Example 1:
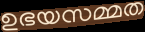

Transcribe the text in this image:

ഉഭയസമ്മത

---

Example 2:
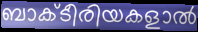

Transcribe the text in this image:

ബാക്ടീരിയകളാൽ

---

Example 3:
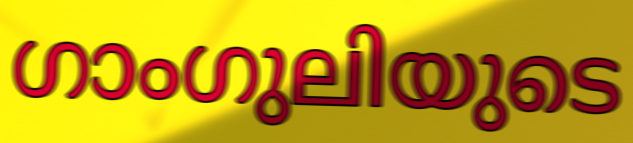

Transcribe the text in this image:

ഗാംഗുലിയുടെ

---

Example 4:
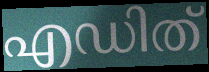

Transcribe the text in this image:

എഡിത്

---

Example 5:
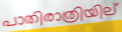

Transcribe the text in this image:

പാതിരാത്രിയില്